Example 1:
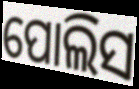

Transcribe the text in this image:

ପୋଲିସ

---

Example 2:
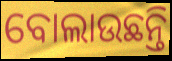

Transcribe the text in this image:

ବୋଲାଉଛନ୍ତି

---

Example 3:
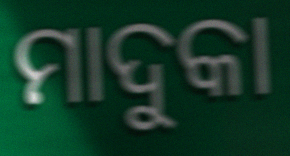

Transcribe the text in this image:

ମାଦୁକା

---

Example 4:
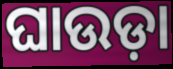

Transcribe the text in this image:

ଘାଉଡ଼ା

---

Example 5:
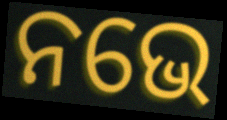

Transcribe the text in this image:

ନଭେ